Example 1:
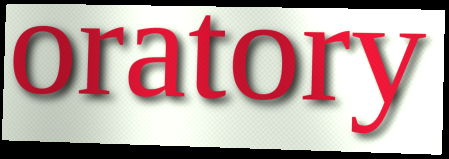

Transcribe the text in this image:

oratory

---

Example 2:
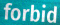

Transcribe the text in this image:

forbid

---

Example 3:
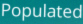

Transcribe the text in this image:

Populated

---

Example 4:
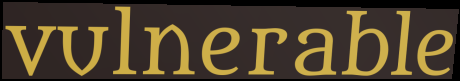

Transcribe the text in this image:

vulnerable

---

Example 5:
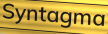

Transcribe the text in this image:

Syntagma